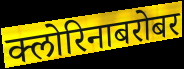
क्लोरिनाबरोबर